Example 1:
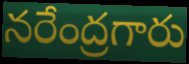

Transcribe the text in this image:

నరేంద్రగారు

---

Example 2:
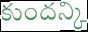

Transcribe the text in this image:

కుందన్కి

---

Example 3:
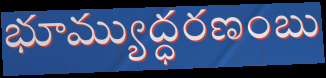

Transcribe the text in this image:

భూమ్యుద్ధరణంబు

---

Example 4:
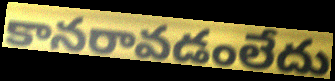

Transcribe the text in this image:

కానరావడంలేదు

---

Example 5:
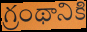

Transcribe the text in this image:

గ్రంథానికి